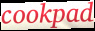
cookpad